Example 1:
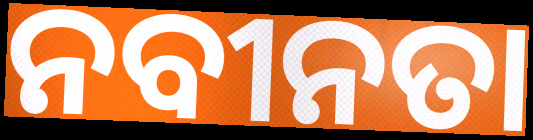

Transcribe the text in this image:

ନବୀନତା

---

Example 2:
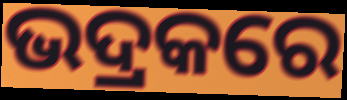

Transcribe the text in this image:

ଭଦ୍ରକରେ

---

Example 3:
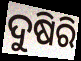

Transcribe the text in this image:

ଦୁଷିରି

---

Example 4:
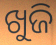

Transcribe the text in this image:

ଖୁଜି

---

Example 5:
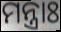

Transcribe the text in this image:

ମନ୍ତ୍ରାଃ